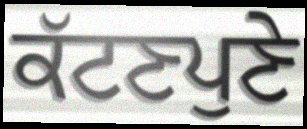
ਕੱਟਣਪੁਣੇ